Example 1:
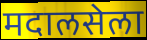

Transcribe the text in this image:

मदालसेला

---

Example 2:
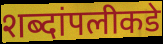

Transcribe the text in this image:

शब्दांपलीकडे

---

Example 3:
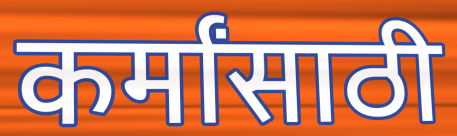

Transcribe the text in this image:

कर्मांसाठी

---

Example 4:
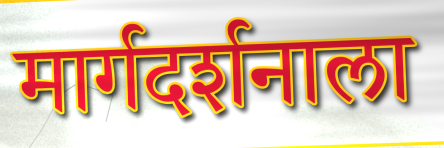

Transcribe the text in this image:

मार्गदर्शनाला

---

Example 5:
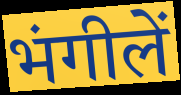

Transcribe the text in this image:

भंगीलें